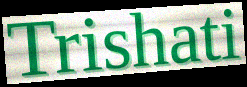
Trishati